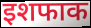
इशफाक